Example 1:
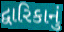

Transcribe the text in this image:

દ્વારિકાનું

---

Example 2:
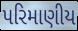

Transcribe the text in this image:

પરિમાણીય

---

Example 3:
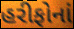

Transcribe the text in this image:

હરીફોનાં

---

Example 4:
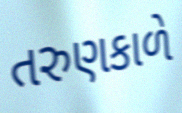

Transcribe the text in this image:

તરુણકાળે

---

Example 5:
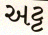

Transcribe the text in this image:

અટ્ટ